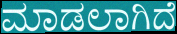
ಮಾಡಲಾಗಿದೆ